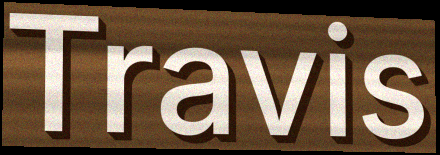
Travis